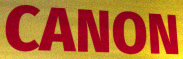
CANON